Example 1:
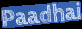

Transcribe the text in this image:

Paadhai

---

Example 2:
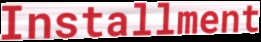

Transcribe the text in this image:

Installment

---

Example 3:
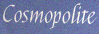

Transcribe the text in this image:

Cosmopolite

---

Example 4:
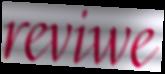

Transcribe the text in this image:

reviwe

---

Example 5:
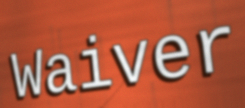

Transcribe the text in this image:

Waiver